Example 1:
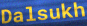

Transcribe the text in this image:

Dalsukh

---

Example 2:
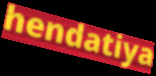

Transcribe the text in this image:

hendatiya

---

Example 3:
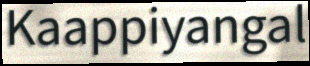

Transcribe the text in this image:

Kaappiyangal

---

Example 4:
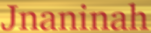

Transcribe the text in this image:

Jnaninah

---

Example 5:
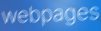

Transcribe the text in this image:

webpages